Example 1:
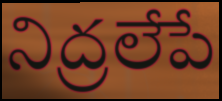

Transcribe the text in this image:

నిద్రలేపే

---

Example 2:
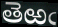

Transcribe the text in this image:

తెఱఁ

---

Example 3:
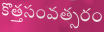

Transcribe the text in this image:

కొత్తసంవత్సరం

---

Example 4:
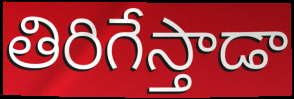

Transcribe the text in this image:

తిరిగేస్తాడా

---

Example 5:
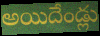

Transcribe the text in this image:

అయిదేండ్లు